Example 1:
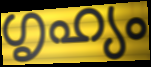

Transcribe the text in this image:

ഗൃഹ്യം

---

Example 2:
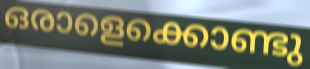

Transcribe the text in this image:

ഒരാളെക്കൊണ്ടു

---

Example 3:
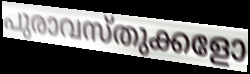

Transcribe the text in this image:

പുരാവസ്തുക്കളോ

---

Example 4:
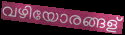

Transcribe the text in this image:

വഴിയോരങ്ങള്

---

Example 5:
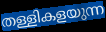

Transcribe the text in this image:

തള്ളികളയുന്ന